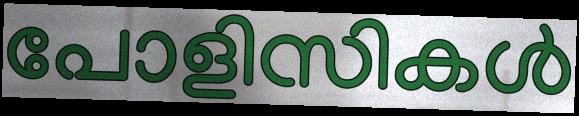
പോളിസികൾ